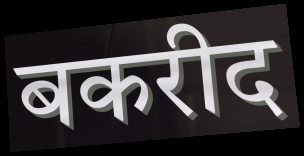
बकरीद